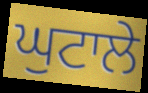
ਘੁਟਾਲੇ